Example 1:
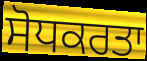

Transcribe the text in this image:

ਸੋਧਕਰਤਾ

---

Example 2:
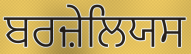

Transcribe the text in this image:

ਬਰਜ਼ੇਲਿਯਸ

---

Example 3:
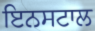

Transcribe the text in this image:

ਇਨਸਟਾਲ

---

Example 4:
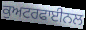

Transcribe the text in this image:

ਕੁਅਟਰਫਾਈਨਲ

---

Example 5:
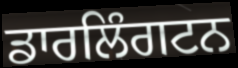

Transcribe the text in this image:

ਡਾਰਲਿੰਗਟਨ